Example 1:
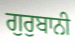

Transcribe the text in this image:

ਗੁਰੁਬਾਨੀ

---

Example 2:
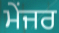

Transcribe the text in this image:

ਮੇਂਜਰ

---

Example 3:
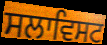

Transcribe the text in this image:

ਸਲਾਵਿਸਟ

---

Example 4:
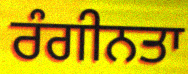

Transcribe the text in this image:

ਰੰਗੀਨਤਾ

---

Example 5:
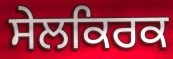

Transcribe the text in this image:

ਸੇਲਕਿਰਕ